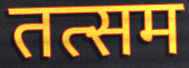
तत्सम